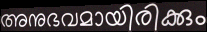
അനുഭവമായിരിക്കും